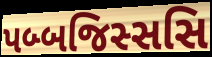
પબ્બજિસ્સસિ